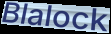
Blalock